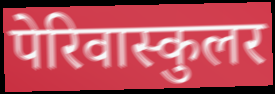
पेरिवास्कुलर